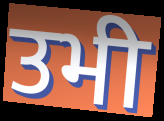
उभी